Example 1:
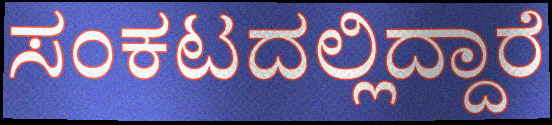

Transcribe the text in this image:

ಸಂಕಟದಲ್ಲಿದ್ದಾರೆ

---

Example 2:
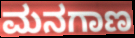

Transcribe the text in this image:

ಮನಗಾಣ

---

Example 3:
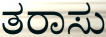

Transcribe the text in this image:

ತರಾಸು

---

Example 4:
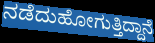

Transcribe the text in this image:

ನಡೆದುಹೋಗುತ್ತಿದ್ದಾನೆ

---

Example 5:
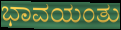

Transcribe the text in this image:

ಭಾವಯಂತು